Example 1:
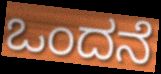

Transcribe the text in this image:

ಒಂದನೆ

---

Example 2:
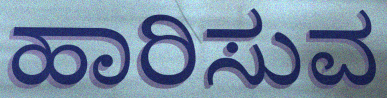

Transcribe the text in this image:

ಹಾರಿಸುವ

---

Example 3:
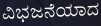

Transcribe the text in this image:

ವಿಭಜನೆಯಾದ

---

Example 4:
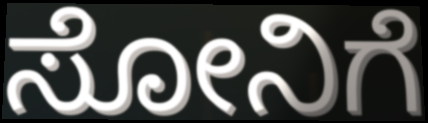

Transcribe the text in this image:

ಸೋನಿಗೆ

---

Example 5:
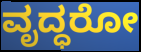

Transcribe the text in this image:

ವೃದ್ಧರೋ